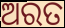
ଅରତ